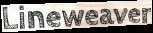
Lineweaver